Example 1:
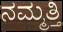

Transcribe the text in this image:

ನಮ್ಮತ್ತಿ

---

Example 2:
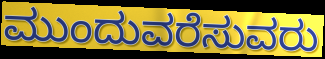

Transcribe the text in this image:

ಮುಂದುವರೆಸುವರು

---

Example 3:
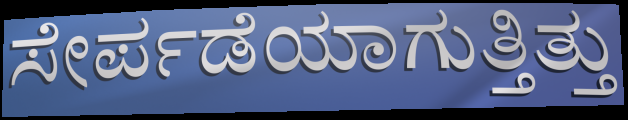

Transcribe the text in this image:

ಸೇರ್ಪಡೆಯಾಗುತ್ತಿತ್ತು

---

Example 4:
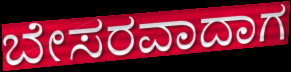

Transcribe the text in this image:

ಬೇಸರವಾದಾಗ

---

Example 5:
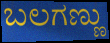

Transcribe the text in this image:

ಬಲಗಣ್ಣು